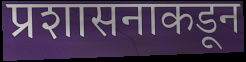
प्रशासनाकडून